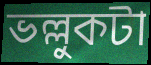
ভল্লুকটা